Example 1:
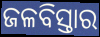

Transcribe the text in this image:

ଜଳବିସ୍ତାର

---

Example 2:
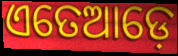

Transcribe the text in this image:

ଏତେଆଡ଼େ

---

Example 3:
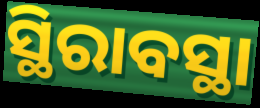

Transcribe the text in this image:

ସ୍ଥିରାବସ୍ଥା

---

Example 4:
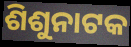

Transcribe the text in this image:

ଶିଶୁନାଟକ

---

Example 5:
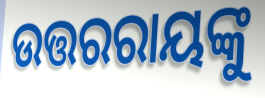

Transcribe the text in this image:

ଉତ୍ତରରାୟଙ୍କୁ